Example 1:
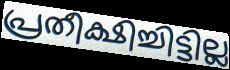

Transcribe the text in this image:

പ്രതീക്ഷിച്ചിട്ടില്ല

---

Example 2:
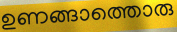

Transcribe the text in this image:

ഉണങ്ങാത്തൊരു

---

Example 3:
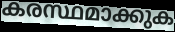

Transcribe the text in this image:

കരസ്ഥമാക്കുക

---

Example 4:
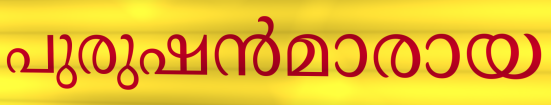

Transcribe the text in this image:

പുരുഷൻമാരായ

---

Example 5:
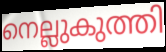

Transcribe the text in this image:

നെല്ലുകുത്തി